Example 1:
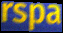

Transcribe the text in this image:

rspa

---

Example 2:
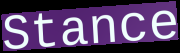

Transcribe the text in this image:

Stance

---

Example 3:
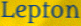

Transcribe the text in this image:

Lepton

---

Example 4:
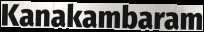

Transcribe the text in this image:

Kanakambaram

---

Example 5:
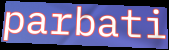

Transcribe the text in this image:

parbati